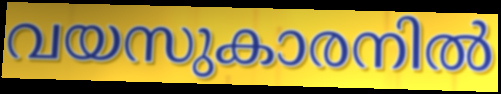
വയസുകാരനിൽ